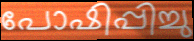
പോഷിപ്പിച്ചു